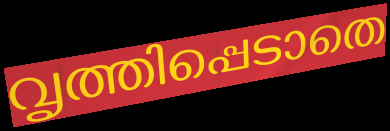
വൃത്തിപ്പെടാതെ